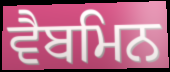
ਵੈਬਮਿਨ